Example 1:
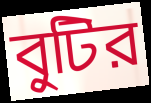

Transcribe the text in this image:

বুটির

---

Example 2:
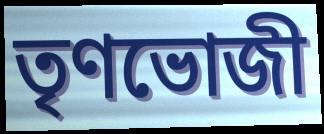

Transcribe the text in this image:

তৃণভোজী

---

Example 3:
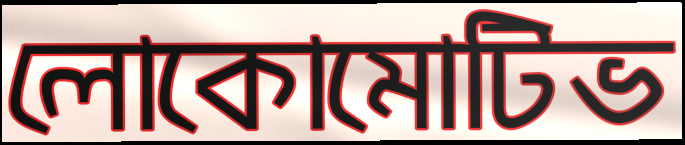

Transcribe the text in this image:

লোকোমোটিভ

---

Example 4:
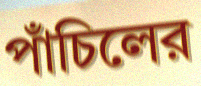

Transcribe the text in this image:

পাঁচিলের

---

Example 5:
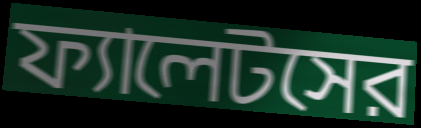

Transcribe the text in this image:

ফ্যালেটসের